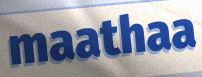
maathaa